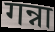
गन्ना